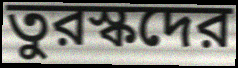
তুরস্কদের